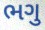
ભગુ